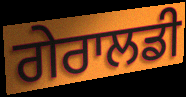
ਗੇਰਾਲਡੀ